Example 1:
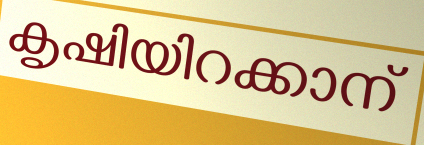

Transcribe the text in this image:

കൃഷിയിറക്കാന്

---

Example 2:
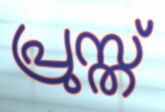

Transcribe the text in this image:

പ്രുസ്ത്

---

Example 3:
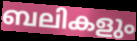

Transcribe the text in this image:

ബലികളും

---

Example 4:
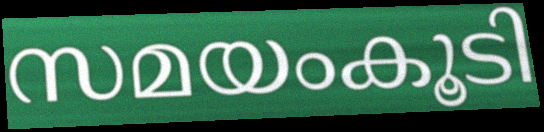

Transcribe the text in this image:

സമയംകൂടി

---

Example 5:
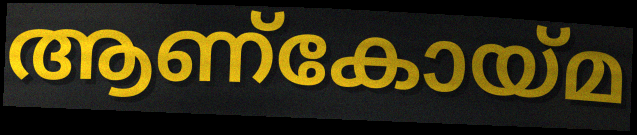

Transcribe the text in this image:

ആണ്കോയ്മ